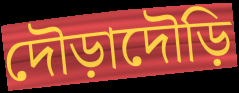
দৌড়াদৌড়ি